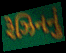
રેઝિનનું